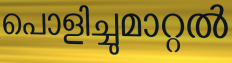
പൊളിച്ചുമാറ്റൽ